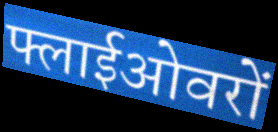
फ्लाईओवरों